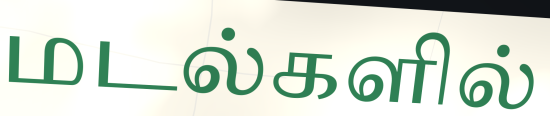
மடல்களில்